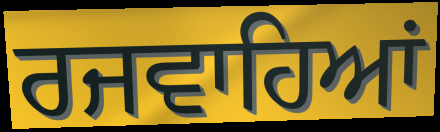
ਰਜਵਾਹਿਆਂ